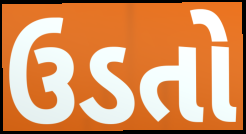
ઉડતો